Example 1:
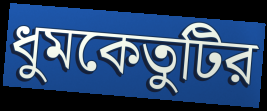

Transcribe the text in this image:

ধুমকেতুটির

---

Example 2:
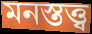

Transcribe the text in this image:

মনস্তত্ত্ব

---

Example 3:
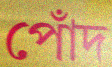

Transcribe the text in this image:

পোঁদ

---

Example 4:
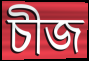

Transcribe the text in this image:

চীজ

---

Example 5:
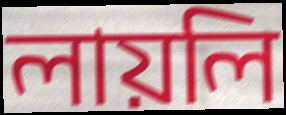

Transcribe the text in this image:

লায়লি